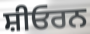
ਸ਼ੀਓਰਨ